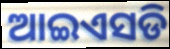
ଆଇଏସଡି